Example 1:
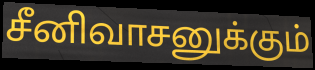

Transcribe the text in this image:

சீனிவாசனுக்கும்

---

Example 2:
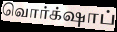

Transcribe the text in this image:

வொர்க்‌ஷாப்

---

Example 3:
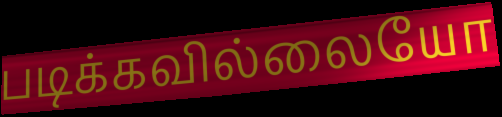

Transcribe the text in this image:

படிக்கவில்லையோ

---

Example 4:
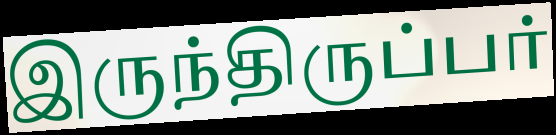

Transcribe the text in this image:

இருந்திருப்பர்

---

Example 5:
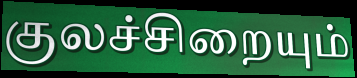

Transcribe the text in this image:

குலச்சிறையும்